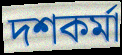
দশকর্মা